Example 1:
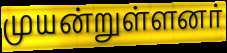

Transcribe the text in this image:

முயன்றுள்ளனர்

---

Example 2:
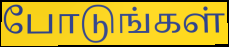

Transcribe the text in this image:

போடுங்கள்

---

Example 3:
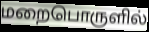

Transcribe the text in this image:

மறைபொருளில்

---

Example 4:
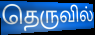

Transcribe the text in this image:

தெருவில்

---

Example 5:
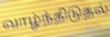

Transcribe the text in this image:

வாழ்ந்திடுதல்